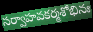
సర్వాహవకర్మశోభినః